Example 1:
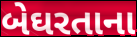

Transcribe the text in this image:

બેઘરતાના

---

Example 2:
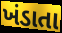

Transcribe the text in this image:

ખંડાતા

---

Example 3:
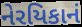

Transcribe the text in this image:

નેરયિકાનં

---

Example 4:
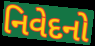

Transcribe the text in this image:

નિવેદનો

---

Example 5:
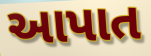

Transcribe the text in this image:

આપાત